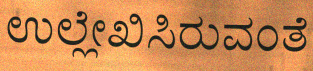
ಉಲ್ಲೇಖಿಸಿರುವಂತೆ